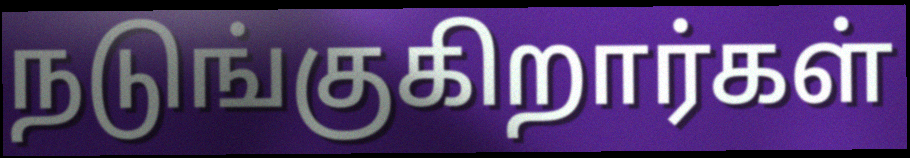
நடுங்குகிறார்கள்